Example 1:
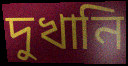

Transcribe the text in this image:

দুখানি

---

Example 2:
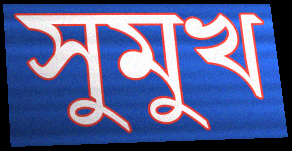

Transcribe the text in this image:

সুমুখ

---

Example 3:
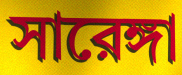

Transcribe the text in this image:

সারেঙ্গা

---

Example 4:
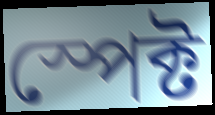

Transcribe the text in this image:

স্পেক্ট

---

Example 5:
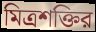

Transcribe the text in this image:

মিত্রশক্তির